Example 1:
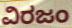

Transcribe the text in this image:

ವಿರಜಂ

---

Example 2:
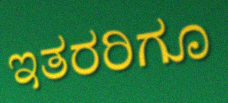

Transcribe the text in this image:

ಇತರರಿಗೂ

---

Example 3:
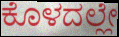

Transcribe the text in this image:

ಕೊಳದಲ್ಲೇ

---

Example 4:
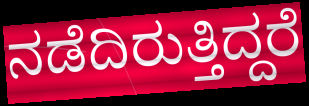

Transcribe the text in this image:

ನಡೆದಿರುತ್ತಿದ್ದರೆ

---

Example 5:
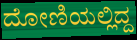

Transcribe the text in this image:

ದೋಣಿಯಲ್ಲಿದ್ದ